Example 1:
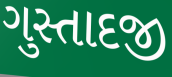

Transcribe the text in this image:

ગુસ્તાદજી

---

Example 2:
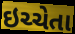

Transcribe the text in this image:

ઇચ્ચેતા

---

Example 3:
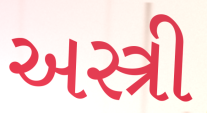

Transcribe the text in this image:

અસ્ત્રી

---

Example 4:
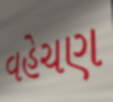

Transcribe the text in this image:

વહેચણ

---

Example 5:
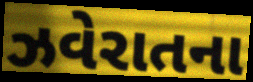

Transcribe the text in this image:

ઝવેરાતના